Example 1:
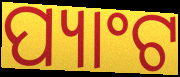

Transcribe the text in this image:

ପ୍ୟାଂଟ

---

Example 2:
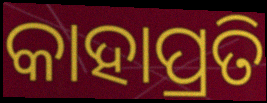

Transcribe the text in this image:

କାହାପ୍ରତି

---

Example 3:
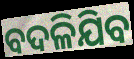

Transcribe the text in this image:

ବଦଳିଯିବ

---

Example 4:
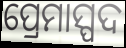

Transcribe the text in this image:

ପ୍ରେମାସ୍ପଦ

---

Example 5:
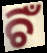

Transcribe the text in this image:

ଚିଁ